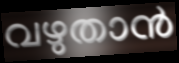
വഴുതാൻ